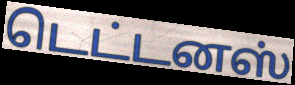
டெட்டனஸ்